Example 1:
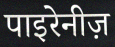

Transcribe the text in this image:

पाइरेनीज़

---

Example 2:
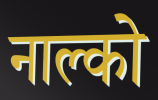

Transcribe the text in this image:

नाल्को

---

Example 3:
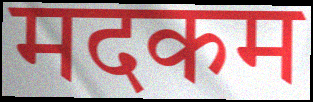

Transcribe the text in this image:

मदकम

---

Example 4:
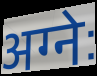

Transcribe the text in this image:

अग्नेः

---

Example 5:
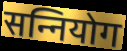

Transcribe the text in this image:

सन्नियोग